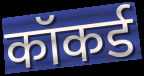
कॉकर्ड